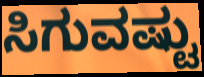
ಸಿಗುವಷ್ಟು